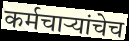
कर्मचाऱ्यांचेच